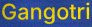
Gangotri